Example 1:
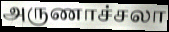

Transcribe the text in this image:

அருணாச்சலா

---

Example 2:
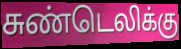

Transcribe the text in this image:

சுண்டெலிக்கு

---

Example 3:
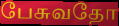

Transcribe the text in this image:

பேசுவதோ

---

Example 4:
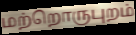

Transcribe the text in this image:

மற்றொருபுறம்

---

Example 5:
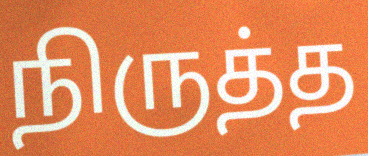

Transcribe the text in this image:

நிருத்த